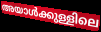
അയാൾക്കുള്ളിലെ